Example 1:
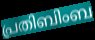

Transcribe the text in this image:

പ്രതിബിംബ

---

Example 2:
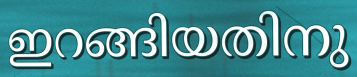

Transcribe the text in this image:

ഇറങ്ങിയതിനു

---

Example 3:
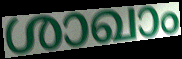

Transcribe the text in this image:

ശാഖാം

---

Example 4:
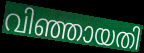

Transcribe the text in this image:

വിഞ്ഞായതി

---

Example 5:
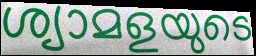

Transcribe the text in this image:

ശ്യാമളയുടെ